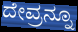
ದೇವ್ರನ್ನೂ